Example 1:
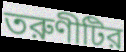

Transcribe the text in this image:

তরুণীটির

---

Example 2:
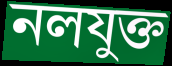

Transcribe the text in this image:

নলযুক্ত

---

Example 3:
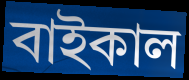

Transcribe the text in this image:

বাইকাল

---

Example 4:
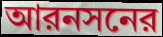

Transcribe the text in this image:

আরনসনের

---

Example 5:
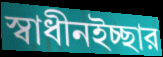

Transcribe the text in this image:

স্বাধীনইচ্ছার